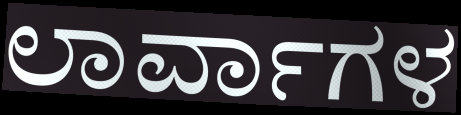
ಲಾರ್ವಾಗಳ